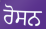
ਰੋਸਨ